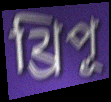
থ্রিপূ